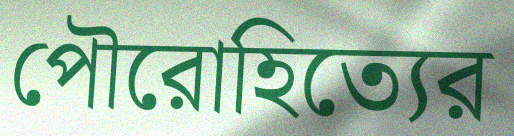
পৌরোহিত্যের